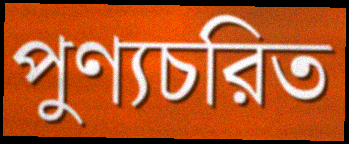
পুণ্যচরিত